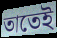
তাতেই